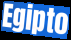
Egipto